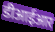
डीआईआर